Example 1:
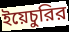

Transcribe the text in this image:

ইয়েচুরির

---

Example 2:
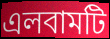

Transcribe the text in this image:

এলবামটি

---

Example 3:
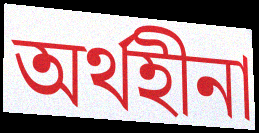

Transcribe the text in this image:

অর্থহীনা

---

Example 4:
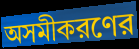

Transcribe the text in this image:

অসমীকরণের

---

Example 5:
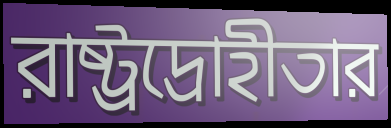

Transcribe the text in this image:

রাষ্ট্রদ্রোহীতার